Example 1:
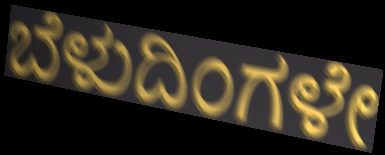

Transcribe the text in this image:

ಬೆಳುದಿಂಗಳೇ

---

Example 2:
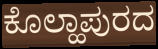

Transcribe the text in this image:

ಕೊಲ್ಹಾಪುರದ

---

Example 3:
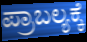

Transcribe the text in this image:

ಪ್ರಾಬಲ್ಯಕ್ಕೆ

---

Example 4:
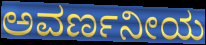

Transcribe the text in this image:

ಅವರ್ಣನೀಯ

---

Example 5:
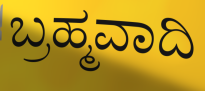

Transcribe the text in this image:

ಬ್ರಹ್ಮವಾದಿ